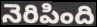
నెరిపింది